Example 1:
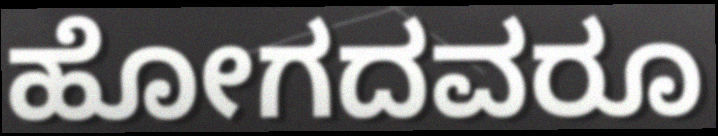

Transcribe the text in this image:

ಹೋಗದವರೂ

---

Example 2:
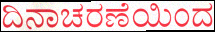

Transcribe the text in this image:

ದಿನಾಚರಣೆಯಿಂದ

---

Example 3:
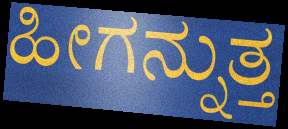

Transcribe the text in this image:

ಹೀಗನ್ನುತ್ತ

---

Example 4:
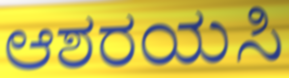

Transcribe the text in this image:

ಆಶರಯಸಿ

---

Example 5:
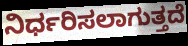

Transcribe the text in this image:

ನಿರ್ಧರಿಸಲಾಗುತ್ತದೆ